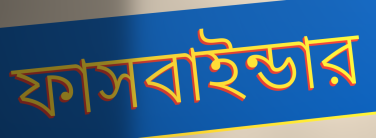
ফাসবাইন্ডার